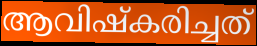
ആവിഷ്കരിച്ചത്